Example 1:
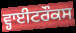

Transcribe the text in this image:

ਵ੍ਹਾਈਟਰੌਕਸ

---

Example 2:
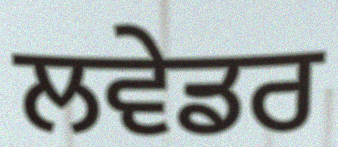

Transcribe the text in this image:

ਲਵੇਡਰ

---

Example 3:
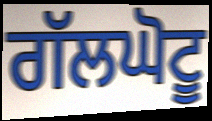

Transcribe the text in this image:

ਗੱਲਘੋਟੂ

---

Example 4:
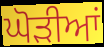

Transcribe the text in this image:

ਘੋੜੀਆਂ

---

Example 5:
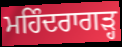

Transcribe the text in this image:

ਮਹਿੰਦਰਾਗੜ੍ਹ